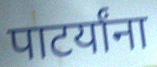
पाटर्यांना